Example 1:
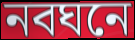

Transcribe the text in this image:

নবঘনে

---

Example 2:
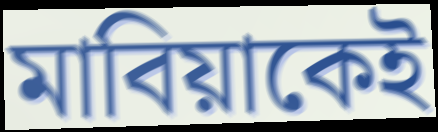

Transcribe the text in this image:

মাবিয়াকেই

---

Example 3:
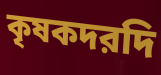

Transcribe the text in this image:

কৃষকদরদি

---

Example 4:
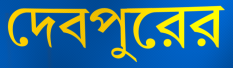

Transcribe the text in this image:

দেবপুরের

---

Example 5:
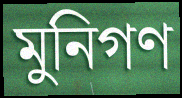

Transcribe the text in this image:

মুনিগণ